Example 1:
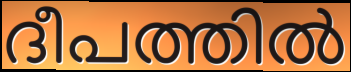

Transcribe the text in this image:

ദീപത്തിൽ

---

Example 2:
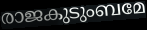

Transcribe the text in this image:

രാജകുടുംബമേ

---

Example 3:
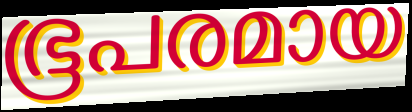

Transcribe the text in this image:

ഭൂപരമായ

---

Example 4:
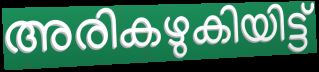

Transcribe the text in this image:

അരികഴുകിയിട്ട്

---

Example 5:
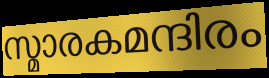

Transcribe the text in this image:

സ്മാരകമന്ദിരം